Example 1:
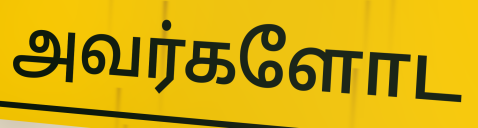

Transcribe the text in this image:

அவர்களோட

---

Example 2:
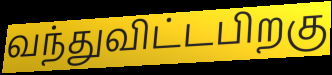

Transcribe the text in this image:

வந்துவிட்டபிறகு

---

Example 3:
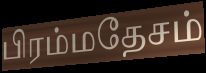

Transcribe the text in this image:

பிரம்மதேசம்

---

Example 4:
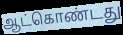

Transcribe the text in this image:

ஆட்கொண்டது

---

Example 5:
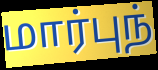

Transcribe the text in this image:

மார்புந்